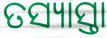
ତସ୍ୟାସ୍ତା